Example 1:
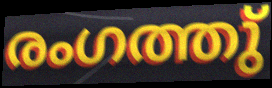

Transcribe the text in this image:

രംഗത്തു്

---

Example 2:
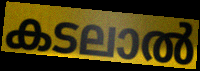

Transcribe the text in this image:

കടലാൽ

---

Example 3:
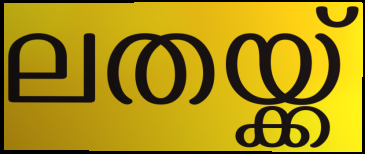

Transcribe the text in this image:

ലതയ്ക്ക്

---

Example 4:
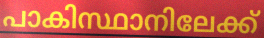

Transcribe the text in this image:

പാകിസ്ഥാനിലേക്ക്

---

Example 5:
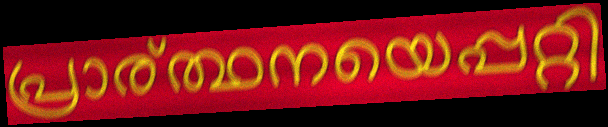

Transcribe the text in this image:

പ്രാര്ത്ഥനയെപ്പറ്റി